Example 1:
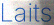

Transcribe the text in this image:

Laits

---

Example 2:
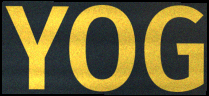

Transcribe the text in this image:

YOG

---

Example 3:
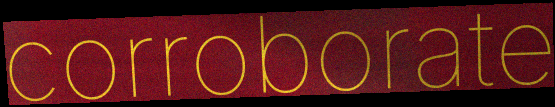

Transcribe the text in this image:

corroborate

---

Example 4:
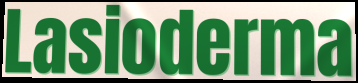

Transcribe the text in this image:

Lasioderma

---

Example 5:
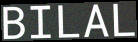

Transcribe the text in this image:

BILAL